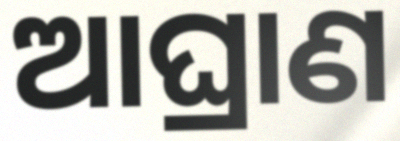
ଆଘ୍ରାଣ